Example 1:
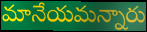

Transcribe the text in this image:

మానేయమన్నారు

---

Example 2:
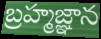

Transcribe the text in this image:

బ్రహ్మజ్ఞాన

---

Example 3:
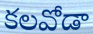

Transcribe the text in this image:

కలవోడా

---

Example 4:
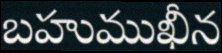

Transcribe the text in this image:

బహుముఖీన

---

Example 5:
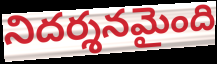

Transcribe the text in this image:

నిదర్శనమైంది